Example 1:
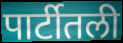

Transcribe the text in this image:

पार्टीतली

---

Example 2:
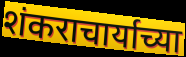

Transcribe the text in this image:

शंकराचार्याच्या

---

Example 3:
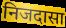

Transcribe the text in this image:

निजदासा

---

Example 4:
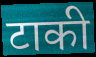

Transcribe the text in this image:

टाकी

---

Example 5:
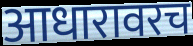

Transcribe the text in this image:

आधारावरच